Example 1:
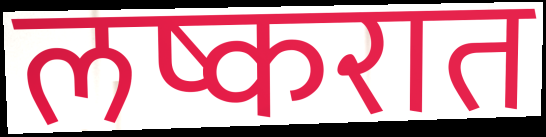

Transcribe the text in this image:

लष्करात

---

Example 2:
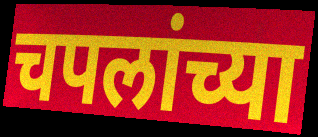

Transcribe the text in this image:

चपलांच्या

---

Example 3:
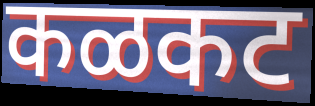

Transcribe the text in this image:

कळकट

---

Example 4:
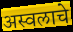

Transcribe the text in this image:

अस्वलाचे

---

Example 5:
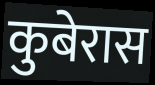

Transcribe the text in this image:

कुबेरास